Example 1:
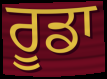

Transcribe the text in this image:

ਰੂਡਾ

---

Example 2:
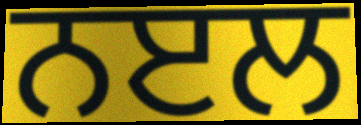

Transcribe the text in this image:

ਨੲਲ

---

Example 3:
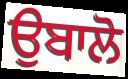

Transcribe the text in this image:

ਉਬਾਲੋ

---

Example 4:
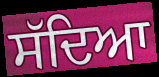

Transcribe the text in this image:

ਸੱਦਿਆ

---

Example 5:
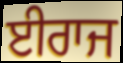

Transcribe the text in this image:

ਈਰਾਜ